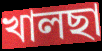
খালছা